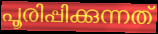
പൂരിപ്പിക്കുന്നത്